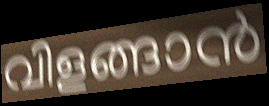
വിളങ്ങാൻ